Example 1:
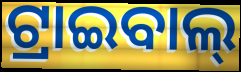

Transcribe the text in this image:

ଟ୍ରାଇବାଲ୍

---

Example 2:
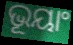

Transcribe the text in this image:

ଭୂୟାଂ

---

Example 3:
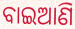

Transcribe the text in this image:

ବାଇଆଣି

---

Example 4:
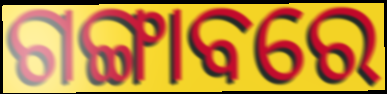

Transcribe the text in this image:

ଗଙ୍ଗାବରେ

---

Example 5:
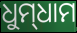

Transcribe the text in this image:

ଧୁମ୍‌ଧାମ